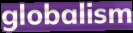
globalism